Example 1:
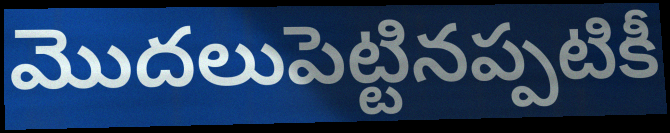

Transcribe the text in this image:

మొదలుపెట్టినప్పటికీ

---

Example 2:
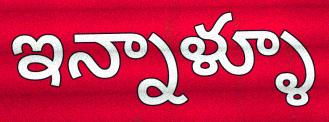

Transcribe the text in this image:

ఇన్నాళ్ళూ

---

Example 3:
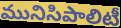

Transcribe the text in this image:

మునిసిపాలిటీ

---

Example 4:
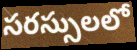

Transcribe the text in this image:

సరస్సులలో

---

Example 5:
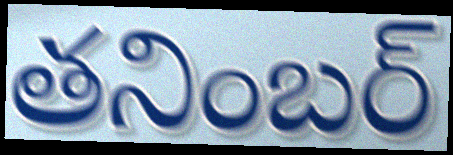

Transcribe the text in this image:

తనింబర్